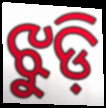
ଝୁଡ଼ି